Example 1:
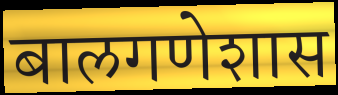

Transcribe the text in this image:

बालगणेशास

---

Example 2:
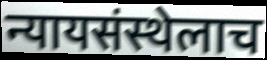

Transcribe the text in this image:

न्यायसंस्थेलाच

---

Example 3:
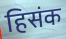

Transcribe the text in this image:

हिसंक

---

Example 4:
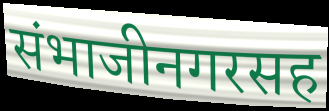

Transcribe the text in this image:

संभाजीनगरसह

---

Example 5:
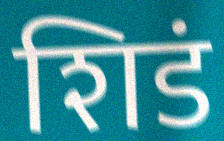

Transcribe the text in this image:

शिडं